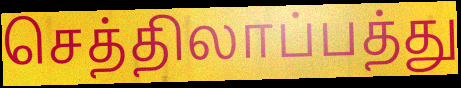
செத்திலாப்பத்து